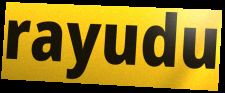
rayudu